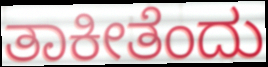
ತಾಕೀತೆಂದು